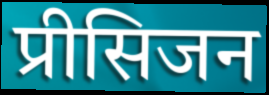
प्रीसिजन